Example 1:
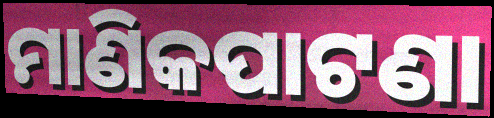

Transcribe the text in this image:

ମାଣିକପାଟଣା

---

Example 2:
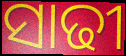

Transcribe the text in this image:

ସାଢୀ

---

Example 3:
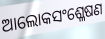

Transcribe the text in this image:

ଆଲୋକସଂଶ୍ଳେଷଣ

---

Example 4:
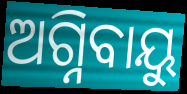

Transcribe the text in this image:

ଅଗ୍ନିବାୟୁ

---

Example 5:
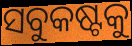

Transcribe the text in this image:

ସବୁକଷ୍ଟକୁ